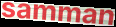
samman